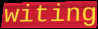
witing